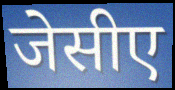
जेसीए